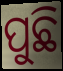
ପୁଛି